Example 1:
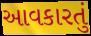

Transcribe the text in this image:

આવકારતું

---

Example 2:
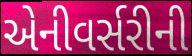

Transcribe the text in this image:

એનીવર્સરીની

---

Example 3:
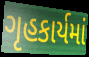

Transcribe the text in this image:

ગૃહકાર્યમાં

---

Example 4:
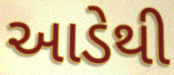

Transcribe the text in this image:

આડેથી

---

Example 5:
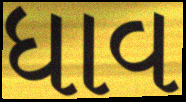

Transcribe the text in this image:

ધાવ